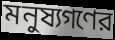
মনুষ্যগণের